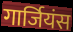
गार्जियंस